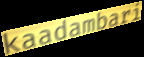
kaadambari